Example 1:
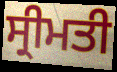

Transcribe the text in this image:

ਸ੍ਰੀਮਤੀ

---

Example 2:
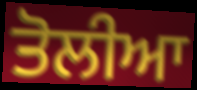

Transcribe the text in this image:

ਤੋਲੀਆ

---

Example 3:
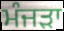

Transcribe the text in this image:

ਮੰਜੜਾ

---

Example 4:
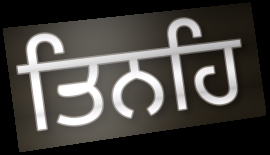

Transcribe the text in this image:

ਤਿਨਹਿ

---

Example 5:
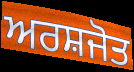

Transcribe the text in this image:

ਅਰਸ਼ਜੋਤ